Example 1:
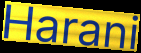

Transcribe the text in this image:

Harani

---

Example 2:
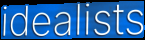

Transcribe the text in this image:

idealists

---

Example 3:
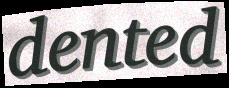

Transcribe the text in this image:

dented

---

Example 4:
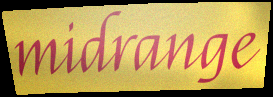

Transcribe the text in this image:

midrange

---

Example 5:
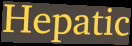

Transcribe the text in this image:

Hepatic